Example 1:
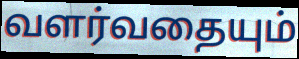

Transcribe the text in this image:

வளர்வதையும்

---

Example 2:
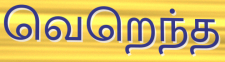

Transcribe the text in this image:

வெறெந்த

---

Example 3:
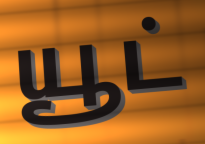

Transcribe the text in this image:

யூட்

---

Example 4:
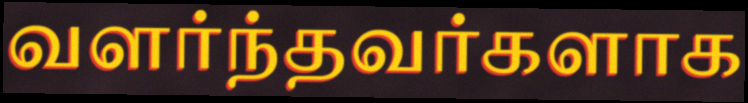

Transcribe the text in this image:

வளர்ந்தவர்களாக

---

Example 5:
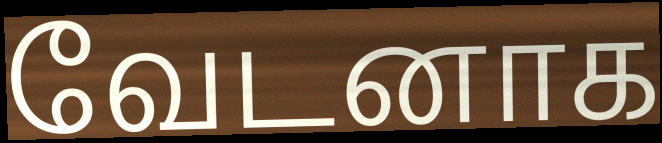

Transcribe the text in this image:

வேடனாக